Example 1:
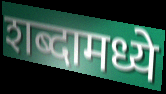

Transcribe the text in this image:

शब्दामध्ये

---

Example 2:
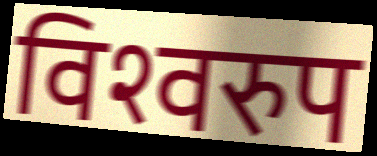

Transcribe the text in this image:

विश्वरुप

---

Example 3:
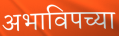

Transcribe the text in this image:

अभाविपच्या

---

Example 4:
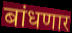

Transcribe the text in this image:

बांधणार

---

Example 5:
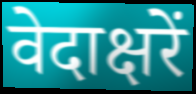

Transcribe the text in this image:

वेदाक्षरें